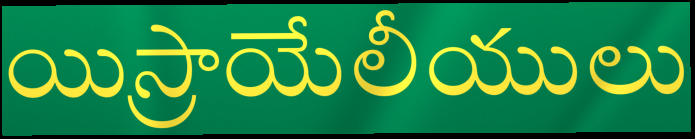
యిస్రాయేలీయులు